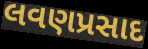
લવણપ્રસાદ